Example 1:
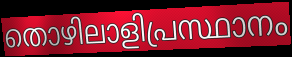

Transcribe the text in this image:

തൊഴിലാളിപ്രസ്ഥാനം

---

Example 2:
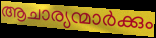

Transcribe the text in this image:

ആചാര്യന്മാർക്കും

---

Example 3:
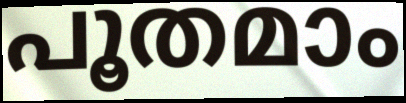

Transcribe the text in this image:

പൂതമാം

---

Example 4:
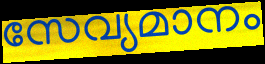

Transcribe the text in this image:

സേവ്യമാനം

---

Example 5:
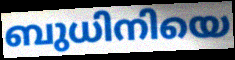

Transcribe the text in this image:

ബുധിനിയെ